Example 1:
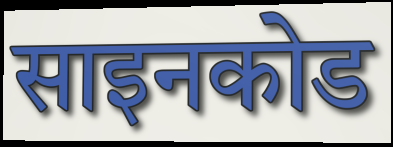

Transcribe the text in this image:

साइनकोड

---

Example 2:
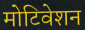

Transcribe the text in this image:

मोटिवेशन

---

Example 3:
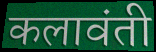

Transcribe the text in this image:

कलावंती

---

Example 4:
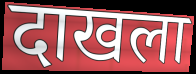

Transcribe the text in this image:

दाखला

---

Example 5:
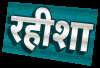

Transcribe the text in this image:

रहीशा